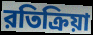
রতিক্রিয়া